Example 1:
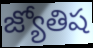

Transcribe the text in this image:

జ్యోతిష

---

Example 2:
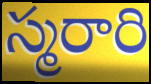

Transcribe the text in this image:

స్మరారి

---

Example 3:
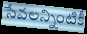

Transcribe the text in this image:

సేవలన్నింటికీ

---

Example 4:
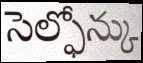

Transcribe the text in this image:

సెల్ఫోన్కు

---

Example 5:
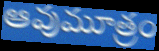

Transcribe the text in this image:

ఆవుమూత్రం